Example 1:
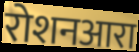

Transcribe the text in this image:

रोशनआरा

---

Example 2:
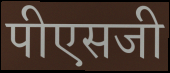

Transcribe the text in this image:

पीएसजी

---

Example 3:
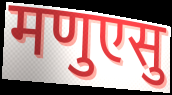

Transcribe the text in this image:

मणुएसु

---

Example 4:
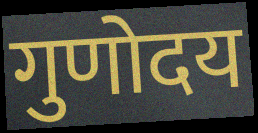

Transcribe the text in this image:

गुणोदय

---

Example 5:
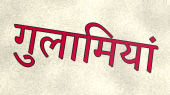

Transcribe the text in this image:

गुलामियां